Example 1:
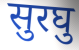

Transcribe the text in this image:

सुरघु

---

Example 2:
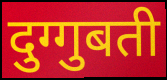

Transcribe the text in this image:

दुग्गुबती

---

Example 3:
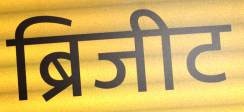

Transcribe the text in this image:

ब्रिजीट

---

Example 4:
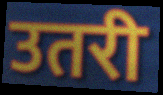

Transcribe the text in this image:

उतरी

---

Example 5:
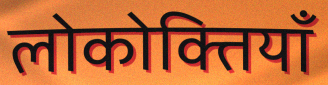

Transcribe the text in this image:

लोकोक्तियाँ